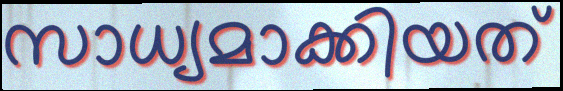
സാധ്യമാക്കിയത്